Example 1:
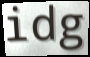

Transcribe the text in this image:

idg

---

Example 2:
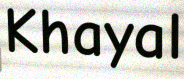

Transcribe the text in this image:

Khayal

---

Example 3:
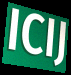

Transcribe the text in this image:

ICIJ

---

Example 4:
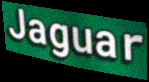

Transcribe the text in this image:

Jaguar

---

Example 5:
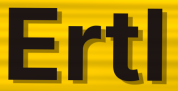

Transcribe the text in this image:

Ertl